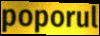
poporul